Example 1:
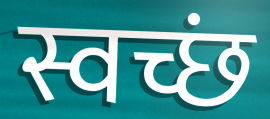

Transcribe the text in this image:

स्वच्छं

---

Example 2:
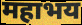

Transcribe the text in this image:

महाभय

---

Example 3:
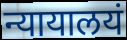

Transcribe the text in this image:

न्यायालयं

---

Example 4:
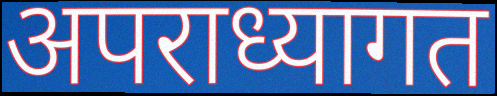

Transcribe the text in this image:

अपराध्यागत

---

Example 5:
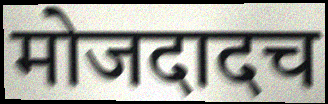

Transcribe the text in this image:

मोजदादच